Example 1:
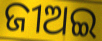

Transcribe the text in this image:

ଜୀଅଇ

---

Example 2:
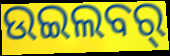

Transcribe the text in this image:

ଉଇଲବର୍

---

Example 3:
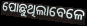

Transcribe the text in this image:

ପୋଛୁଥିଲାବେଳେ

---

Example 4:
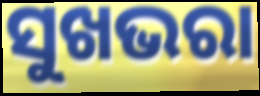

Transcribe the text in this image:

ସୁଖଭରା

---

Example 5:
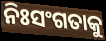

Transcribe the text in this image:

ନିଃସଂଗତାକୁ